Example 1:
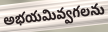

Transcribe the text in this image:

అభయమివ్వగలను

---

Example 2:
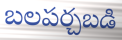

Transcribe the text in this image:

బలపర్చబడి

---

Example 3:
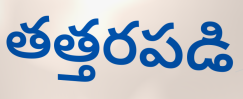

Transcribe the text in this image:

తత్తరపడి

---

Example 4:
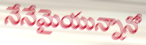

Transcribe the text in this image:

నేనేమైయున్నానో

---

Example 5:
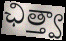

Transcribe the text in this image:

ఛిత్త్వా